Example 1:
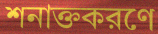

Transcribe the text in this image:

শনাক্তকরণে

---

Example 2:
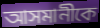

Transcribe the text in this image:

আসমানীকে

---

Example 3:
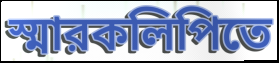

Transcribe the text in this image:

স্মারকলিপিতে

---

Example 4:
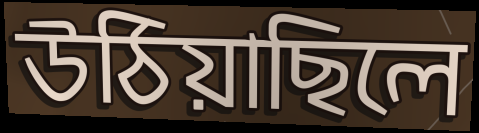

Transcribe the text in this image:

উঠিয়াছিলে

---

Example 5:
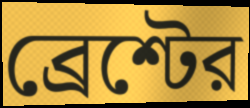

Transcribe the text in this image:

ব্রেশ্টের